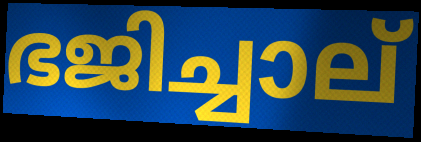
ഭജിച്ചാല്